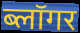
ब्लॉगर